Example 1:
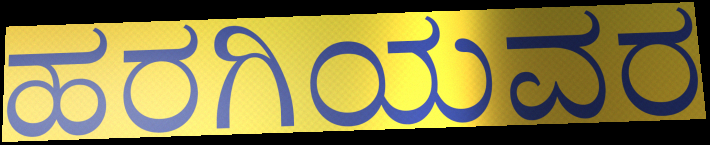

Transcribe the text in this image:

ಹರಗಿಯವರ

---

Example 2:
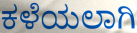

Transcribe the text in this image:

ಕಳೆಯಲಾಗಿ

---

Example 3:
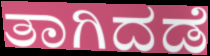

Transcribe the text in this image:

ತಾಗಿದಡೆ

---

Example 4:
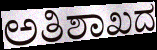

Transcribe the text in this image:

ಅತಿಶಾಖದ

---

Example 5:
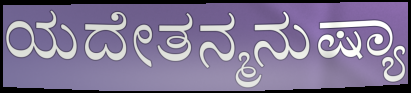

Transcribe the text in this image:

ಯದೇತನ್ಮನುಷ್ಯಾ